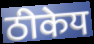
ठीकेय